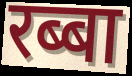
रब्बा